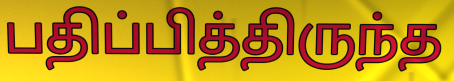
பதிப்பித்திருந்த